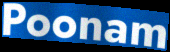
Poonam